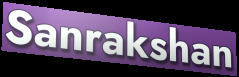
Sanrakshan